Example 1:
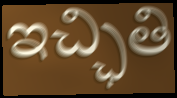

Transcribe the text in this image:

ఇచ్ఛితి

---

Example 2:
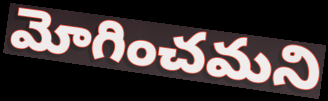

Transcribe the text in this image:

మోగించమని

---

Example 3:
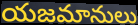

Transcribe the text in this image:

యజమానులు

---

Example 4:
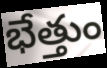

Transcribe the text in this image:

భేత్తుం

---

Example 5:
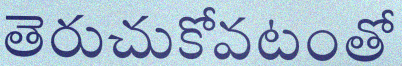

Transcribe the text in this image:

తెరుచుకోవటంతో